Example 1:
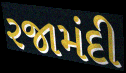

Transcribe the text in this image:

રજામંદી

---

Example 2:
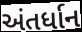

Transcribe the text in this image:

અંતર્ધાન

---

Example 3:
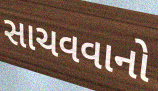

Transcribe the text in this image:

સાચવવાનો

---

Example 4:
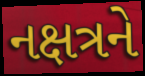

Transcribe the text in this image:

નક્ષત્રને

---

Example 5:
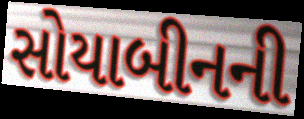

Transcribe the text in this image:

સોયાબીનની